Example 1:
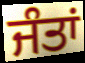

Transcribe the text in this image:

ਜੰਤਾਂ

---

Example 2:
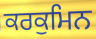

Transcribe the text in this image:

ਕਰਕੁਮਿਨ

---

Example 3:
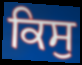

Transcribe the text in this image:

ਕਿਸੁ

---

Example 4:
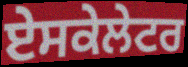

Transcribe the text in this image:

ਏਸਕੇਲੇਟਰ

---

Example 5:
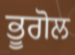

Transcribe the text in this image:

ਭੂਗੋਲ